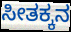
ಸೀತಕ್ಕನ